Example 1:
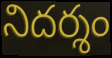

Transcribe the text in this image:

నిదర్శం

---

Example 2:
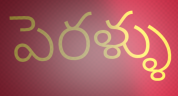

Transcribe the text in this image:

పెరళ్ళు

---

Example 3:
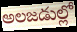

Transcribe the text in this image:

అలజడుల్లో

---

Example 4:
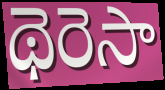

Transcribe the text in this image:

థెరెసా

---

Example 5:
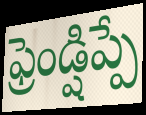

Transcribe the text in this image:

ఫ్రెండ్షిప్పే